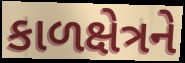
કાળક્ષેત્રને